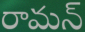
రామన్